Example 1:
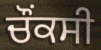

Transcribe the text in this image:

ਚੌਂਕਸੀ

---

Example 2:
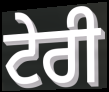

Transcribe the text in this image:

ਟੇਰੀ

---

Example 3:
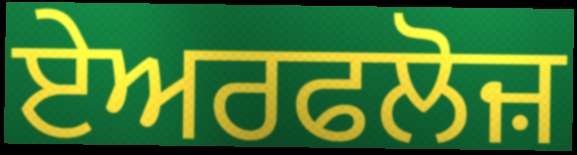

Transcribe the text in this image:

ਏਅਰਫਲੋਜ਼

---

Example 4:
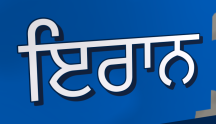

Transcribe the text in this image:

ਇਰਾਨ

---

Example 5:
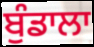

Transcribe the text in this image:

ਬੁੰਡਾਲਾ